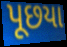
પૂછયા